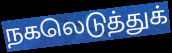
நகலெடுத்துக்